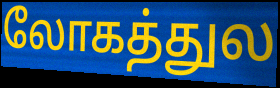
லோகத்துல